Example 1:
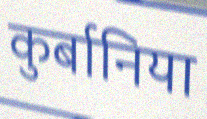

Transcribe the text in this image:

कुर्बानिया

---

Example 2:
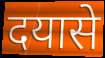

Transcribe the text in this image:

दयासे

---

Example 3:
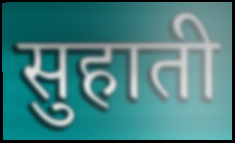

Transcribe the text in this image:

सुहाती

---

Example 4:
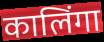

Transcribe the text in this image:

कालिंगा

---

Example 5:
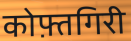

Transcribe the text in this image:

कोफ़्तगिरी